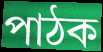
পাঠক